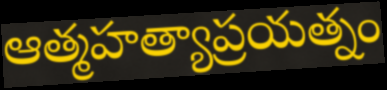
ఆత్మహత్యాప్రయత్నం